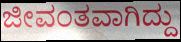
ಜೀವಂತವಾಗಿದ್ದು